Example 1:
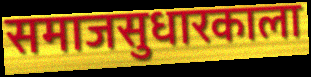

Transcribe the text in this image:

समाजसुधारकाला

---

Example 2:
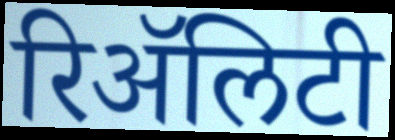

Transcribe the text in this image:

रिॲलिटी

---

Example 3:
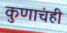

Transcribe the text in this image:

कुणाचंही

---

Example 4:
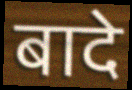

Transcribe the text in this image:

बादे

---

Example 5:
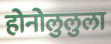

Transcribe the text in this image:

होनोलुलुला